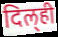
दिल्ही